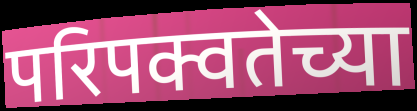
परिपक्वतेच्या